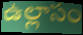
ఉల్లాసం